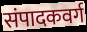
संपादकवर्ग